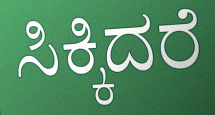
ಸಿಕ್ಕಿದರೆ